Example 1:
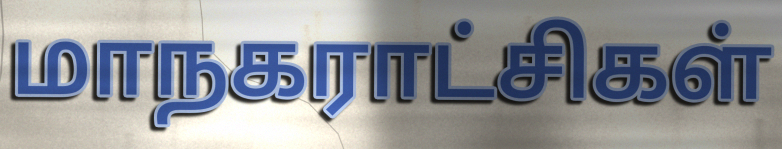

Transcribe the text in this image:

மாநகராட்சிகள்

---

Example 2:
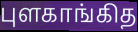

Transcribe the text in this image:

புளகாங்கித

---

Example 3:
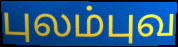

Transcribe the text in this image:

புலம்புவ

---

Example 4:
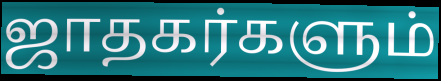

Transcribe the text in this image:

ஜாதகர்களும்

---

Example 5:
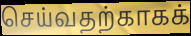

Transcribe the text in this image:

செய்வதற்காகக்